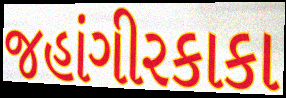
જહાંગીરકાકા